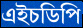
এইচডিপি